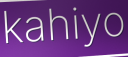
kahiyo